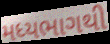
મધ્યભાગથી